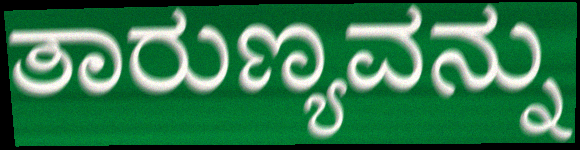
ತಾರುಣ್ಯವನ್ನು